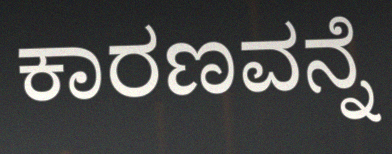
ಕಾರಣವನ್ನೆ